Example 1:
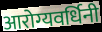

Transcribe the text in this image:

आरोग्यवर्धिनी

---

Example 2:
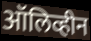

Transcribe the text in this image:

ऑलिव्हीन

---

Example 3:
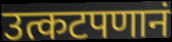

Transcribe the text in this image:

उत्कटपणानं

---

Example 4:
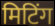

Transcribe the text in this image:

मिटिंग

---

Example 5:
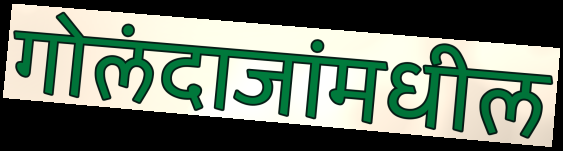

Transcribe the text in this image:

गोलंदाजांमधील